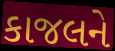
કાજલને